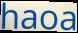
haoa